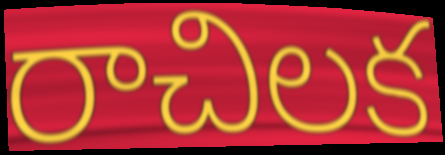
రాచిలక